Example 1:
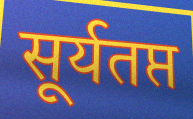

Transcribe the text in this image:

सूर्यतप्त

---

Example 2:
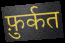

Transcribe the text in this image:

फ़ुर्कत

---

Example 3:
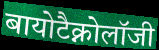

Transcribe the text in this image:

बायोटैक्नोलॉजी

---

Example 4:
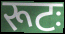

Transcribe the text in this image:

रूटः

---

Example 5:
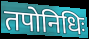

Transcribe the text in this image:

तपोनिधिः